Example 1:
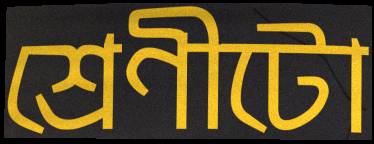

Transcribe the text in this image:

শ্ৰেণীটো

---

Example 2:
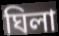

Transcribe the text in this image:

ঘিলা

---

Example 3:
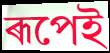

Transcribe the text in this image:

ৰূপেই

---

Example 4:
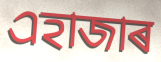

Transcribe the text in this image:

এহাজাৰ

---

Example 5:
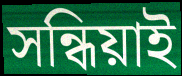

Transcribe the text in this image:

সন্ধিয়াই